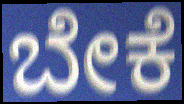
ಬೇಕೆ